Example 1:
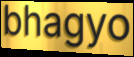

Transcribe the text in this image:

bhagyo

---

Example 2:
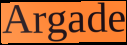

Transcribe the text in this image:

Argade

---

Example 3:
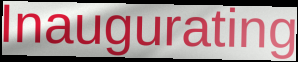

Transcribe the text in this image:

Inaugurating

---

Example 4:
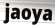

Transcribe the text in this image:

jaoya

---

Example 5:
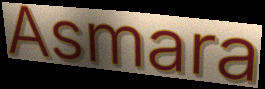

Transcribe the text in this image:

Asmara